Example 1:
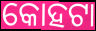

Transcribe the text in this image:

କୋହଟା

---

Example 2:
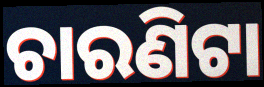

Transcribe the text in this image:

ଚାରଣିଟା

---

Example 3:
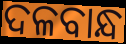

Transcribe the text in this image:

ଦଳବାନ୍ଧ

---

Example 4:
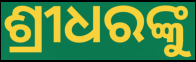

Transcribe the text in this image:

ଶ୍ରୀଧରଙ୍କୁ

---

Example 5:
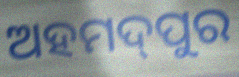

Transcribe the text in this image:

ଅହମଦ୍‌ପୁର